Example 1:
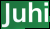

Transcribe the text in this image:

Juhi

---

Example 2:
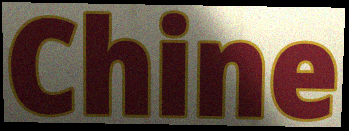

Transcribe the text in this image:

Chine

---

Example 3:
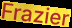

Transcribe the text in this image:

Frazier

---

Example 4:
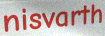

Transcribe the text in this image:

nisvarth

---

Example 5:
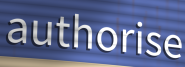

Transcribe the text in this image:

authorise